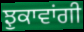
ਝੁਕਾਵਾਂਗੀ